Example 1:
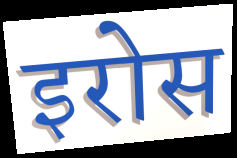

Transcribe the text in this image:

इरोस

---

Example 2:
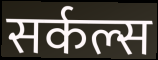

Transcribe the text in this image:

सर्कल्‍स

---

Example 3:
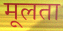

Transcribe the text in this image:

मूलता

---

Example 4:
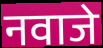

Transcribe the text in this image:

नवाजे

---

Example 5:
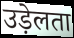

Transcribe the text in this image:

उड़ेलता